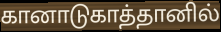
கானாடுகாத்தானில்